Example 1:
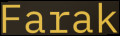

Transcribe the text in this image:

Farak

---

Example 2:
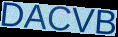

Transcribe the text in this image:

DACVB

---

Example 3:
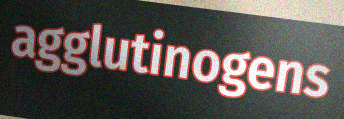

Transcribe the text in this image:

agglutinogens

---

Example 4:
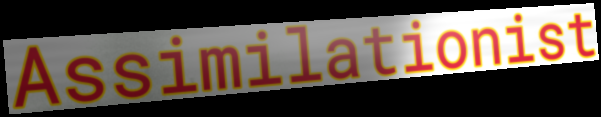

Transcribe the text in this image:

Assimilationist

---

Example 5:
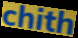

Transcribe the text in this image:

chith